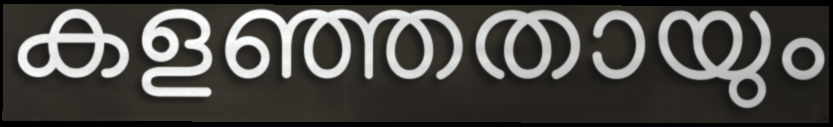
കളഞ്ഞതായും